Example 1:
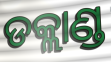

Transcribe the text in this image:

ଡକ୍ଲାଣ୍ଡ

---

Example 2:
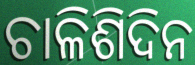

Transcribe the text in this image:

ଚାଳିଶିଦିନ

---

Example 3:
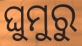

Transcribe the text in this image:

ଘୁମୁରୁ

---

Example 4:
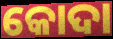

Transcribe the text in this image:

କୋଦା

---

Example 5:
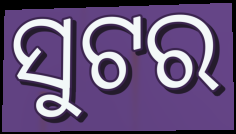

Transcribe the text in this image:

ସୁଟର